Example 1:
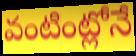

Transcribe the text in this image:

వంటింట్లోనే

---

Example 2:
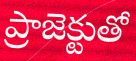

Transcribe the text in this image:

ప్రాజెక్టుతో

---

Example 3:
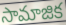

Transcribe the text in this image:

సామాజిక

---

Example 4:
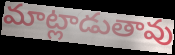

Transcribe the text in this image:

మాట్లాడుతావు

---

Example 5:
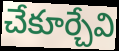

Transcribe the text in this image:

చేకూర్చేవి